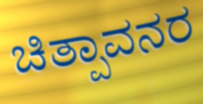
ಚಿತ್ಪಾವನರ